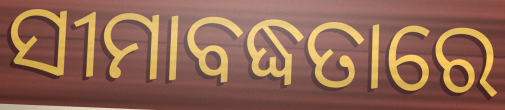
ସୀମାବଦ୍ଧତାରେ